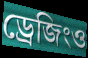
ড্রেজিংও